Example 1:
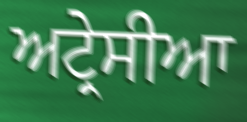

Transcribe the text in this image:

ਅਟ੍ਰੇਸੀਆ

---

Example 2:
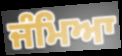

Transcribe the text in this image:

ਜੰਮਿਆ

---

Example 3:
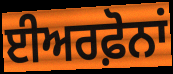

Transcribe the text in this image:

ਈਅਰਫ਼ੋਨਾਂ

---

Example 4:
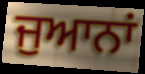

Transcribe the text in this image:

ਜੁਆਨਾਂ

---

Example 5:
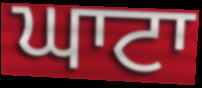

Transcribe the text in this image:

ਘਾਟਾ